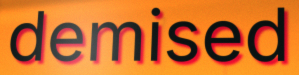
demised